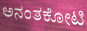
ಅನಂತಕೋಟಿ